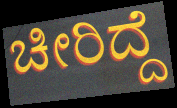
ಚೀರಿದ್ದೆ